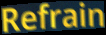
Refrain